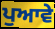
ਪੁਆਵੇ